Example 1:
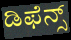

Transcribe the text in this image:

ಡಿಫೆನ್ಸ್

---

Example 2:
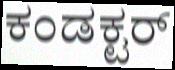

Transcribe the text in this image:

ಕಂಡಕ್ಟರ್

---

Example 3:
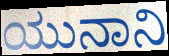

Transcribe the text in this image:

ಯುನಾನಿ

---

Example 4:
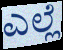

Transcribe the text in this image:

ಎಲ್ಲೆ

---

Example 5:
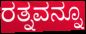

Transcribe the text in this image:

ರತ್ನವನ್ನೂ